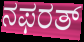
ನಫರತ್